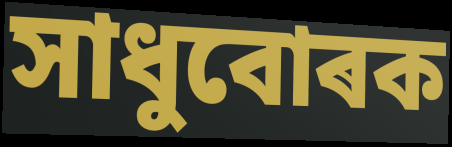
সাধুবোৰক